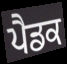
ਪੈਡਕ